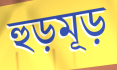
হুড়মূড়